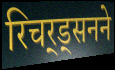
रिचर्ड्सनने